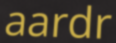
aardr